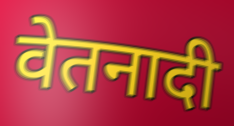
वेतनादी